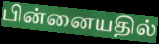
பின்னையதில்